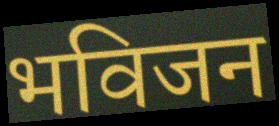
भविजन